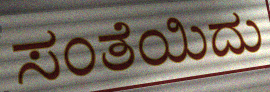
ಸಂತೆಯಿದು